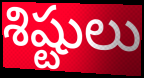
శిష్టులు